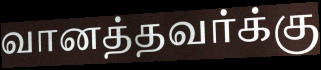
வானத்தவர்க்கு